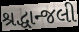
શ્રદ્ધાન્જલી